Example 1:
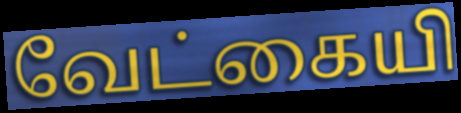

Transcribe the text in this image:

வேட்கையி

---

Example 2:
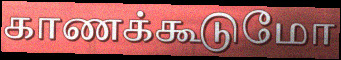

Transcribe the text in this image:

காணக்கூடுமோ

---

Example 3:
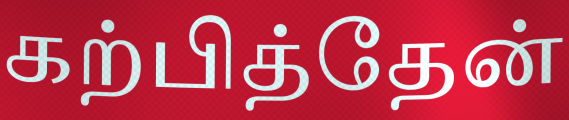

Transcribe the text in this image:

கற்பித்தேன்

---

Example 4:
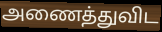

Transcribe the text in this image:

அணைத்துவிட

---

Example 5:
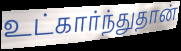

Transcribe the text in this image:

உட்கார்ந்துதான்